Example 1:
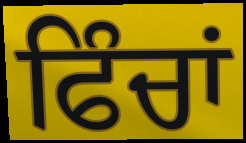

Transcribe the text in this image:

ਫਿੰਚਾਂ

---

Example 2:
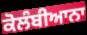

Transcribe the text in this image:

ਕੋਲੰਬੀਆਨਾ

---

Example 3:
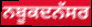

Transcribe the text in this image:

ਨਬੂਕਦਨੱਸਰ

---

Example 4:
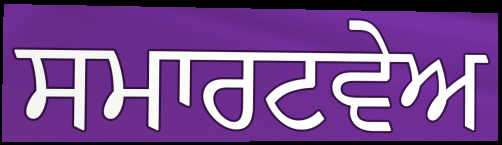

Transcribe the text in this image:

ਸਮਾਰਟਵੇਅ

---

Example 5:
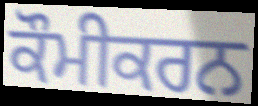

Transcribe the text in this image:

ਕੌਮੀਕਰਨ